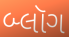
બ્લૉગ